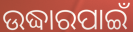
ଉଦ୍ଧାରପାଇଁ